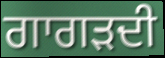
ਗਾਗੜਦੀ